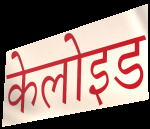
केलोइड